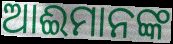
ଆଈମାନଙ୍କ